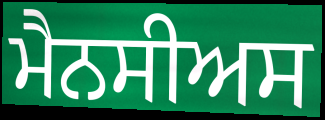
ਮੈਨਸੀਅਸ